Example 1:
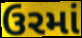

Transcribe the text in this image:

ઉરમાં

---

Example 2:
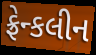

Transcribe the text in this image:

ફ્રેન્કલીન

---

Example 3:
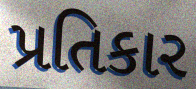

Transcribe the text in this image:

પ્રતિકાર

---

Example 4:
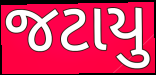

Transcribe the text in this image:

જટાયુ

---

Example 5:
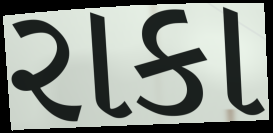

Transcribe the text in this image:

રાકા